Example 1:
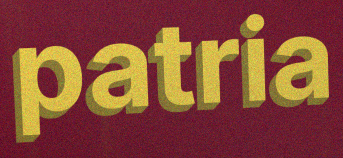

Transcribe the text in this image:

patria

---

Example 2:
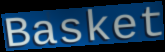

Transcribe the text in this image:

Basket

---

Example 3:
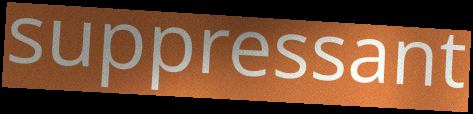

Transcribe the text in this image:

suppressant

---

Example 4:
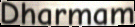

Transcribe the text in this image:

Dharmam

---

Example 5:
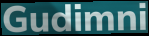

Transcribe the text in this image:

Gudimni